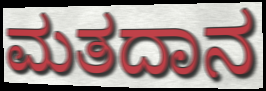
ಮತದಾನ